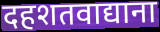
दहशतवाद्याना